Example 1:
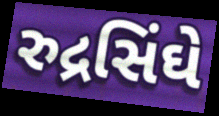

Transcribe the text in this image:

રુદ્રસિંઘે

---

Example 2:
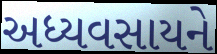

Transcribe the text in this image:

અધ્યવસાયને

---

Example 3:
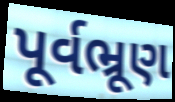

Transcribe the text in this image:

પૂર્વભ્રૂણ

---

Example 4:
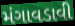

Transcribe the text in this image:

મંગાવડાવી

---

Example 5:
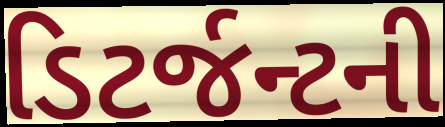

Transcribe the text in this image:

ડિટર્જન્ટની